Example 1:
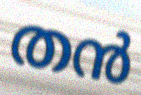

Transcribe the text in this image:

തൻ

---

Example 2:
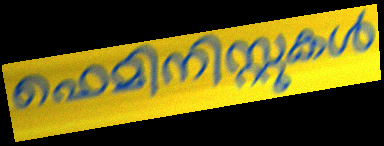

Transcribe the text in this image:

ഫെമിനിസ്റ്റുകൾ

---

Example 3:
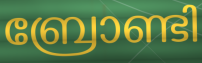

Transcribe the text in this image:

ബ്രോണ്ടി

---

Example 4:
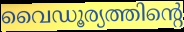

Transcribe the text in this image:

വൈഡൂര്യത്തിന്റെ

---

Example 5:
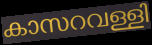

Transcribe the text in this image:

കാസറവള്ളി